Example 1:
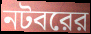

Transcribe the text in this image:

নটবরের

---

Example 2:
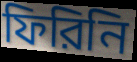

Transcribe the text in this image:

ফিরিনি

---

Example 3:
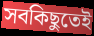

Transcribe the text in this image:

সবকিছুতেই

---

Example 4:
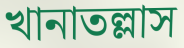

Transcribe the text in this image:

খানাতল্লাস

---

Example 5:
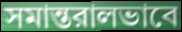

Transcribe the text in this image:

সমান্তরালভাবে